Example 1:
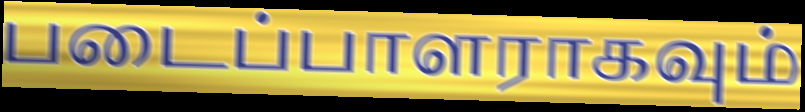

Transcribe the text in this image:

படைப்பாளராகவும்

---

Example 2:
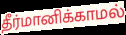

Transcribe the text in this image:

தீர்மானிக்காமல்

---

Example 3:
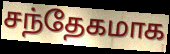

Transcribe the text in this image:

சந்தேகமாக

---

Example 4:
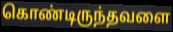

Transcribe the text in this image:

கொண்டிருந்தவளை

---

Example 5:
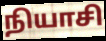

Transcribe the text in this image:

நியாசி